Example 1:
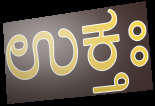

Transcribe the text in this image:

ಉಕ್ತಃ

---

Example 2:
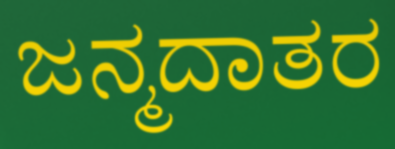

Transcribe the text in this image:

ಜನ್ಮದಾತರ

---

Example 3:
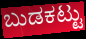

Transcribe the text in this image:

ಬುಡಕಟ್ಟು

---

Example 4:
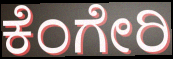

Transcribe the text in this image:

ಕೆಂಗೇರಿ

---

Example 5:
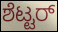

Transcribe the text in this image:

ಶೆಟ್ಟರ್